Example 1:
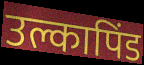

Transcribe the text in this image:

उल्‍कापिंड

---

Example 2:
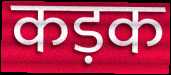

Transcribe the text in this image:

कड़क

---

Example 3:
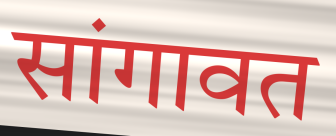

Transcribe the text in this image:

सांगावत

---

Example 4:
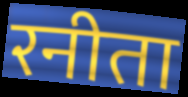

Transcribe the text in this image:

रनीता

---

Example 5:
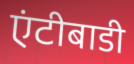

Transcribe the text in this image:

एंटीबाडी